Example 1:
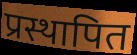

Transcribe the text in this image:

प्रस्थापित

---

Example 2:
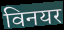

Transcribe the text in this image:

विनयर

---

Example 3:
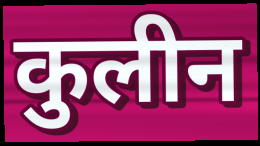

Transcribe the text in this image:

कुलीन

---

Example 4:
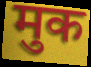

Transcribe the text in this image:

मुक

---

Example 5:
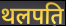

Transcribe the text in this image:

थलपति